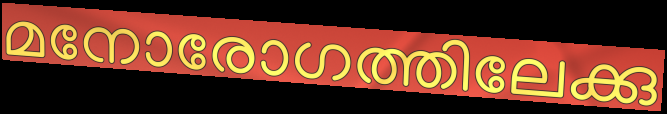
മനോരോഗത്തിലേക്കു